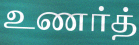
உணர்த்